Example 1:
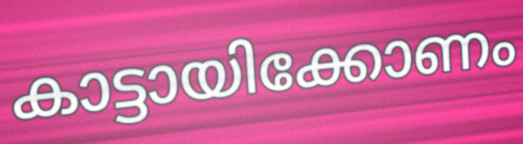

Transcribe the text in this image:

കാട്ടായിക്കോണം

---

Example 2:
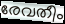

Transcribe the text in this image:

രേവതീം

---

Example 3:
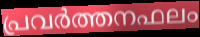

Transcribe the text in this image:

പ്രവർത്തനഫലം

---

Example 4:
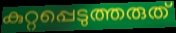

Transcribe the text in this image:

കുറ്റപ്പെടുത്തരുത്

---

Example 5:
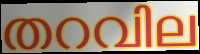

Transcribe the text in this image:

തറവില